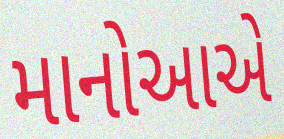
માનોઆએ